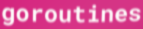
goroutines